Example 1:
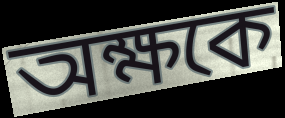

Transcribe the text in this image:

অক্ষকে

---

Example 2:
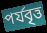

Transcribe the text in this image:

পর্যবৃত্ত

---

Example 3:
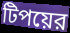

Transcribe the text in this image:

টিপয়ের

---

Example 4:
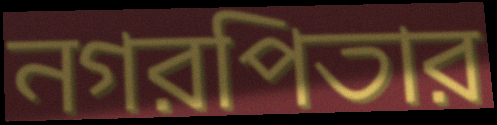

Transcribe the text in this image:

নগরপিতার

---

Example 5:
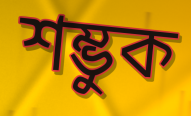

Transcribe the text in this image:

শম্ভুক